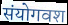
संयोगवश